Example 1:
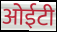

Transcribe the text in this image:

ओईटी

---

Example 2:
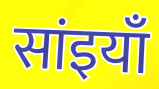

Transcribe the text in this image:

सांइयाँ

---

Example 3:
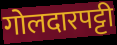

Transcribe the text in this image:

गोलदारपट्टी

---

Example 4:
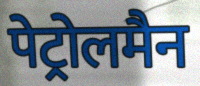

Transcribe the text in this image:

पेट्रोलमैन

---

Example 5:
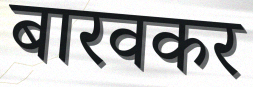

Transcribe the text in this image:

बारवकर